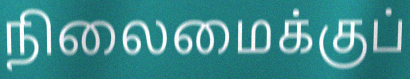
நிலைமைக்குப்